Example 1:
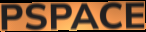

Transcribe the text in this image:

PSPACE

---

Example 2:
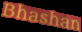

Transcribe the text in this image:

Bhashan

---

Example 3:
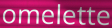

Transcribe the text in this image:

omelette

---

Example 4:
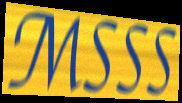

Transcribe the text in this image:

MSSS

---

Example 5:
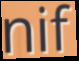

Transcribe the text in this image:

nif